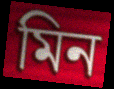
মিন